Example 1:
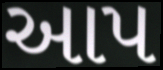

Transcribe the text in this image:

આપ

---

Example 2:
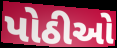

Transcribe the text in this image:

પોઠીઓ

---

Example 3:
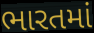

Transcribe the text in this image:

ભારતમાં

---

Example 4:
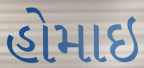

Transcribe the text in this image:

હોમાઇ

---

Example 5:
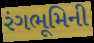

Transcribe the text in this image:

રંગભૂમિની